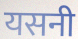
यसनी